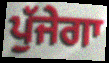
ਪੁੱਜੇਗਾ